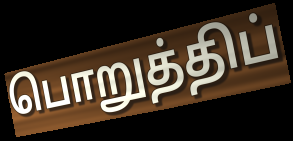
பொறுத்திப்